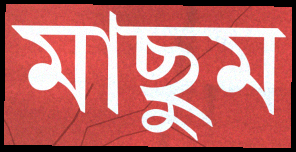
মাছুম